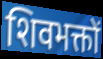
शिवभक्तों